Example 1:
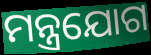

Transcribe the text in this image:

ମନ୍ତ୍ରଯୋଗ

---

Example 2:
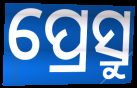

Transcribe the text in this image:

ପ୍ରେସ୍ରୁ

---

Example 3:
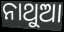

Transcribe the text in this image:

ନାଥୁଆ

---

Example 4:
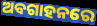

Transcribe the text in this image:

ଅବଗାହନରେ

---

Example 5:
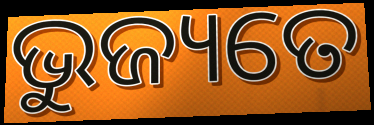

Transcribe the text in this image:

ଭୁଜ୍ୟତେ